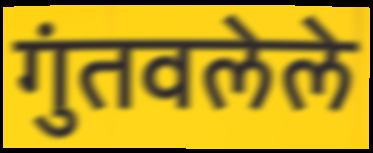
गुंतवलेले